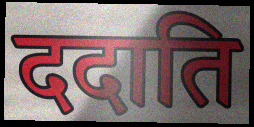
ददाति